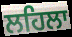
ਲਹਿਲਾ